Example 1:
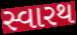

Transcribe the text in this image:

સ્વારથ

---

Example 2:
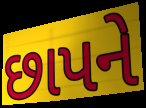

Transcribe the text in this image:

છાપને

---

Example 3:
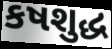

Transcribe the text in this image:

કષશુદ્ધ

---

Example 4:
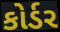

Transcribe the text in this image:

કોર્ડર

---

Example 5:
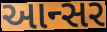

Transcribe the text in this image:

આન્સર